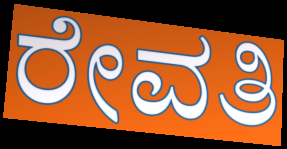
ರೇವತಿ